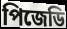
পিজেডি